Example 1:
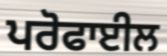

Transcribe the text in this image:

ਪਰੋਫਾਈਲ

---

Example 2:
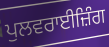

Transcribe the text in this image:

ਪੁਲਵਰਾਈਜ਼ਿੰਗ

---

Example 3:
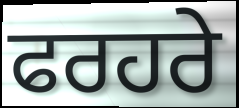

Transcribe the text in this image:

ਫਰਹਰੇ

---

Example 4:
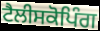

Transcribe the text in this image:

ਟੈਲੀਸਕੋਪਿੰਗ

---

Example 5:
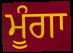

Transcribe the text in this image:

ਮੂੰਗਾ